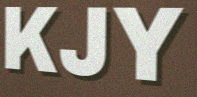
KJY